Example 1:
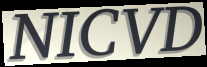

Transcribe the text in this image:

NICVD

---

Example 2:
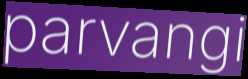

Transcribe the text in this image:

parvangi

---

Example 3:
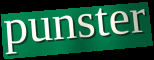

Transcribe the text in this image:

punster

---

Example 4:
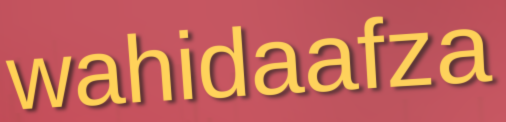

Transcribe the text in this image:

wahidaafza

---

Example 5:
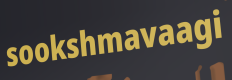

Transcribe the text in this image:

sookshmavaagi